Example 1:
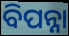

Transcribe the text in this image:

ବିପନ୍ନା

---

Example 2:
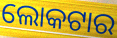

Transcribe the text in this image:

ଲୋକଟାର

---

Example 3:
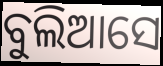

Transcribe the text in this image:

ବୁଲିଆସେ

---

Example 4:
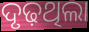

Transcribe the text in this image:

ଦୃଢ଼ଥିଲା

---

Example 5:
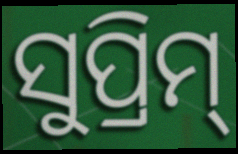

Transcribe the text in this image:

ସୁପ୍ରିମ୍